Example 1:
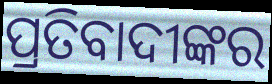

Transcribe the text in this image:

ପ୍ରତିବାଦୀଙ୍କର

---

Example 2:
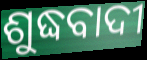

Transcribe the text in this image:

ଶୁଦ୍ଧବାଦୀ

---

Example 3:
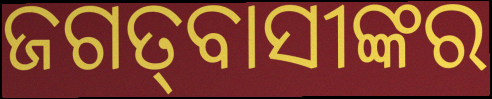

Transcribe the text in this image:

ଜଗତ୍‍ବାସୀଙ୍କର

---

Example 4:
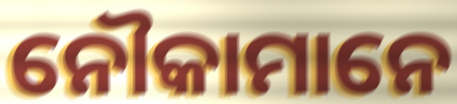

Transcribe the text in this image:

ନୌକାମାନେ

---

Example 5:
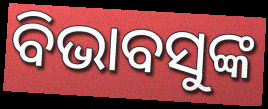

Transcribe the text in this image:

ବିଭାବସୁଙ୍କ